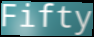
Fifty